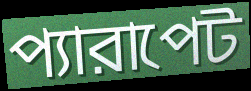
প্যারাপেট